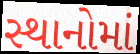
સ્થાનોમાં